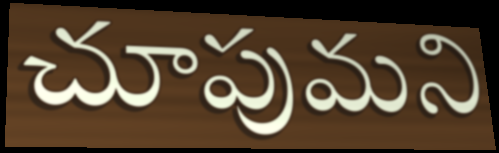
చూపుమని